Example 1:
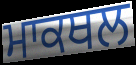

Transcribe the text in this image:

ਮਾਕਥਲ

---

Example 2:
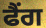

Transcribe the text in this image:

ਫੈਂਗ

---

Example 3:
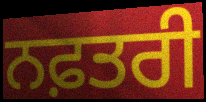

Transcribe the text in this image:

ਨਫ਼ਤਰੀ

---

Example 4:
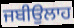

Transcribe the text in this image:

ਜਬੀਉਲਾਹ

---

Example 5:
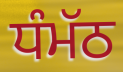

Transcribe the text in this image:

ਧੰਮੱਠ